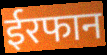
ईरफान